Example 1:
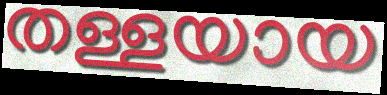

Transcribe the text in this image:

തള്ളയായ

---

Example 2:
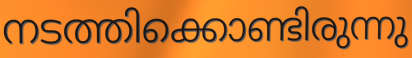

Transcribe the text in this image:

നടത്തിക്കൊണ്ടിരുന്നു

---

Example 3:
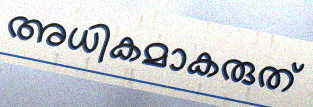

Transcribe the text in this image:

അധികമാകരുത്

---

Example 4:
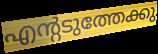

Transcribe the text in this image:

എന്റടുത്തേക്കു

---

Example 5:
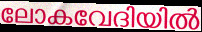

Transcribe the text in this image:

ലോകവേദിയിൽ